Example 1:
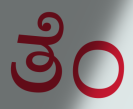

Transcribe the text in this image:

ತೆಂ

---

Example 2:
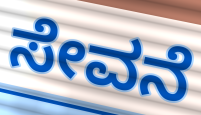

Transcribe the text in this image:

ಸೇವನೆ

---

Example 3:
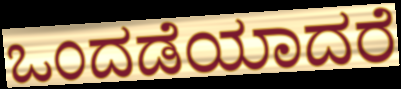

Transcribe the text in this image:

ಒಂದಡೆಯಾದರೆ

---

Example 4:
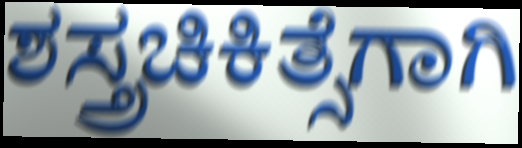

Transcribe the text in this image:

ಶಸ್ತ್ರಚಿಕಿತ್ಸೆಗಾಗಿ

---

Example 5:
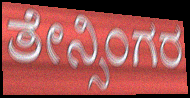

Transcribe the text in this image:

ತೇನ್ಸಿಂಗರ